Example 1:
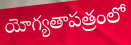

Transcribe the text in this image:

యోగ్యతాపత్రంలో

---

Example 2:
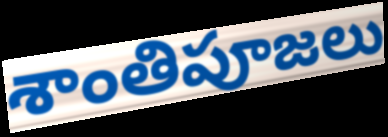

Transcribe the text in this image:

శాంతిపూజలు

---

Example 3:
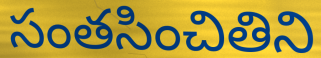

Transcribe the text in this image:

సంతసించితిని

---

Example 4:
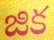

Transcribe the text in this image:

జిక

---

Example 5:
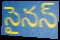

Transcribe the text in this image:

సైనస్